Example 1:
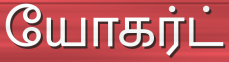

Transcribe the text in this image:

யோகர்ட்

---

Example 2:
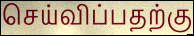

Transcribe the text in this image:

செய்விப்பதற்கு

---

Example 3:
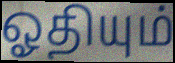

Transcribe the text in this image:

ஓதியும்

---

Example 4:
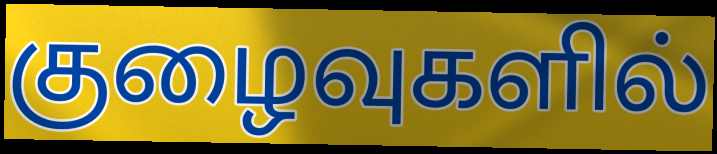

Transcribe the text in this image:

குழைவுகளில்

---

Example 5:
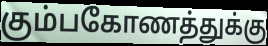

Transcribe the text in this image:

கும்பகோணத்துக்கு